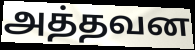
அத்தவன